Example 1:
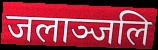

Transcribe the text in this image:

जलाञ्जलि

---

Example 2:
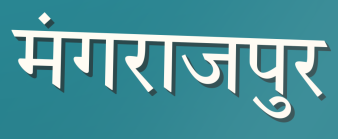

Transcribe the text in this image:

मंगराजपुर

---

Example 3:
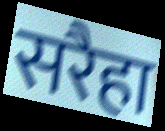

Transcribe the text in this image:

सरैहा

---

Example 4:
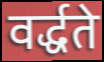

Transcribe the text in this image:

वर्द्धते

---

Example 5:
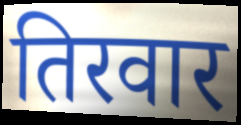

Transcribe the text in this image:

तिरवार